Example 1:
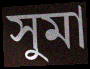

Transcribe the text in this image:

সুমা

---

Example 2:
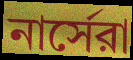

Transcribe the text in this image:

নার্সেরা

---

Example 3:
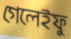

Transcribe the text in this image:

গেলেইফু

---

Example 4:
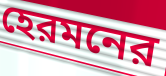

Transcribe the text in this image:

হেরমনের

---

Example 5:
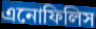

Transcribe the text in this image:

এনোফিলিস